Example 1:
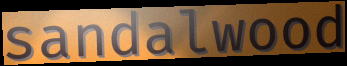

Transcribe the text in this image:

sandalwood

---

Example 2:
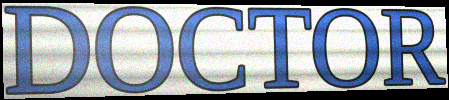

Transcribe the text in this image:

DOCTOR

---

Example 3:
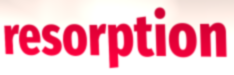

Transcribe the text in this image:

resorption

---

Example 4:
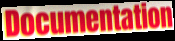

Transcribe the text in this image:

Documentation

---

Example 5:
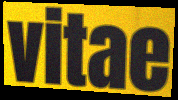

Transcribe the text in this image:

vitae